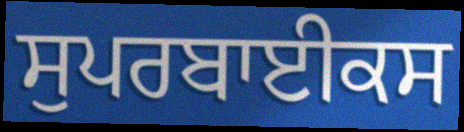
ਸੁਪਰਬਾਈਕਸ